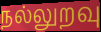
நல்லுறவு